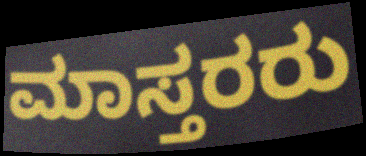
ಮಾಸ್ತರರು